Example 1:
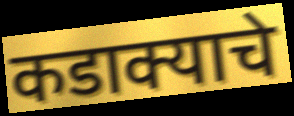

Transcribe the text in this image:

कडाक्याचे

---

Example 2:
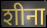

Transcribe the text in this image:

शीना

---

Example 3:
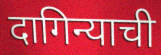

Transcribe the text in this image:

दागिन्याची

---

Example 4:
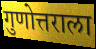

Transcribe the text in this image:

गुणोत्तराला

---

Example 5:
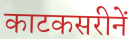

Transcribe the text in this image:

काटकसरीनें